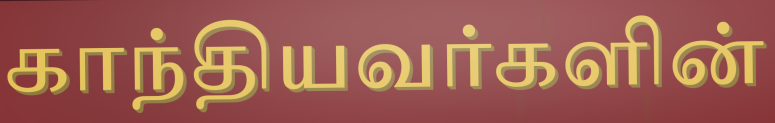
காந்தியவர்களின்